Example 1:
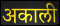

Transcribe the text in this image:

अकाली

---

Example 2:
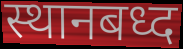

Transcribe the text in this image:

स्थानबध्द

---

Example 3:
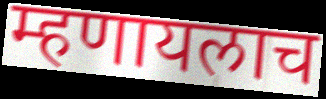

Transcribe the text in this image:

म्हणायलाच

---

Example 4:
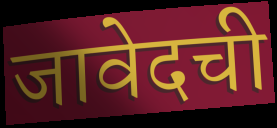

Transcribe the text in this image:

जावेदची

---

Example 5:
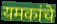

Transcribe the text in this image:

यमकांचे